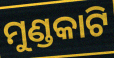
ମୁଣ୍ଡକାଟି